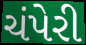
ચંપેરી